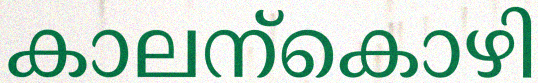
കാലന്കൊഴി